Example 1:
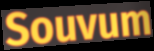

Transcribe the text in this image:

Souvum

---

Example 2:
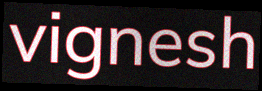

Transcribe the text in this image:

vignesh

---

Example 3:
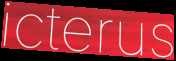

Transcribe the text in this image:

icterus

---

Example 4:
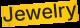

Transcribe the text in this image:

Jewelry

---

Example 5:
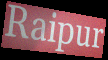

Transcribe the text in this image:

Raipur